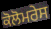
ਕੋਲੋਮਰੇਸ